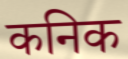
कनिक